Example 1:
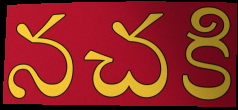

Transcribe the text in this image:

నచకి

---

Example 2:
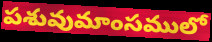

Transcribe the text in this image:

పశువుమాంసములో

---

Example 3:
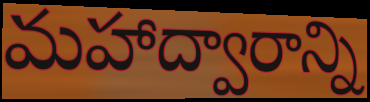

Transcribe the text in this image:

మహాద్వారాన్ని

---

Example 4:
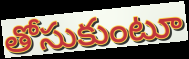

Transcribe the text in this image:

తోసుకుంటూ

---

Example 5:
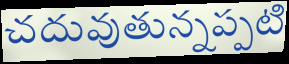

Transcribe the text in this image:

చదువుతున్నప్పటి